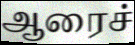
ஆரைச்